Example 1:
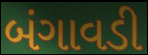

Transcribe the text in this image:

બંગાવડી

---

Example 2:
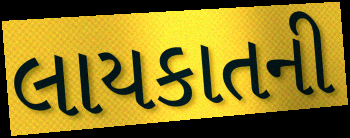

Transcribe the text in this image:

લાયકાતની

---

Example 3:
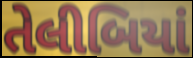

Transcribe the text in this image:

તેલીબિયાં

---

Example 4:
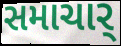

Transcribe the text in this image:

સમાચાર્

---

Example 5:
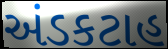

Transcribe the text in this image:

અંડકટાહ